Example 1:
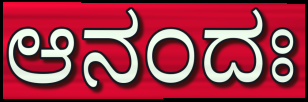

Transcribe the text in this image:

ಆನಂದಃ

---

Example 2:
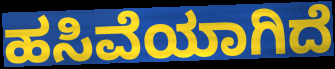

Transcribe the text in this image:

ಹಸಿವೆಯಾಗಿದೆ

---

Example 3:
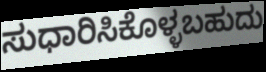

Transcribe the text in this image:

ಸುಧಾರಿಸಿಕೊಳ್ಳಬಹುದು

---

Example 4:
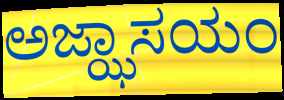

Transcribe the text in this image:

ಅಜ್ಝಾಸಯಂ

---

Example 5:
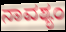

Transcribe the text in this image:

ನಾವಶ್ಯಂ